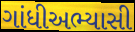
ગાંધીઅભ્યાસી